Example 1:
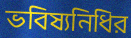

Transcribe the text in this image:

ভবিষ্যনিধির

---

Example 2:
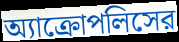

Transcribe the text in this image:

অ্যাক্রোপলিসের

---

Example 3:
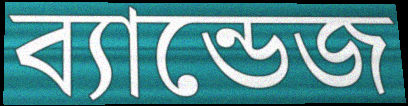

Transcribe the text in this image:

ব্যান্ডেজ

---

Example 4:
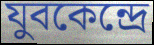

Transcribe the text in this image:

যুবকেন্দ্রে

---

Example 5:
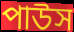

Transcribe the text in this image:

পাউস